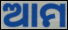
ଆମ